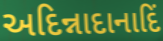
અદિન્નાદાનાદિં